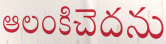
ఆలంకిచెదను